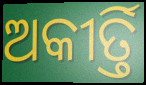
ଅକୀର୍ତ୍ତି